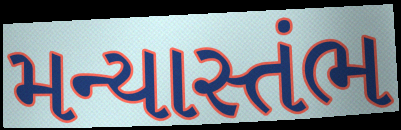
મન્યાસ્તંભ